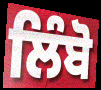
ਲਿੰਬੋ